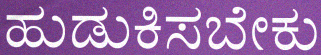
ಹುಡುಕಿಸಬೇಕು